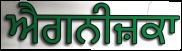
ਐਗਨੀਜ਼ਕਾ